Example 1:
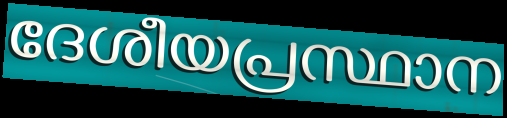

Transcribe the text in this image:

ദേശീയപ്രസ്ഥാന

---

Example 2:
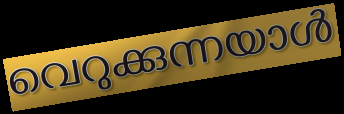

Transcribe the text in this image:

വെറുക്കുന്നയാൾ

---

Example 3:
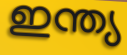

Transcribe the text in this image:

ഇന്ത്യ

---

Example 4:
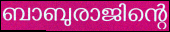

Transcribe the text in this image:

ബാബുരാജിന്റെ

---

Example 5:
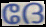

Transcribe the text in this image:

ദേ